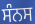
ਸੰਨਸ